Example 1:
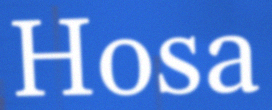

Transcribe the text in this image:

Hosa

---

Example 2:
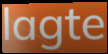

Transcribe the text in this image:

lagte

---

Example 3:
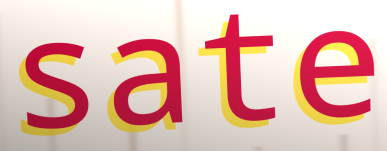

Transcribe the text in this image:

sate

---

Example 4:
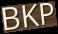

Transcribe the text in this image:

BKP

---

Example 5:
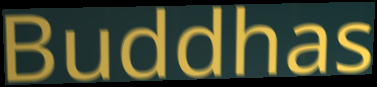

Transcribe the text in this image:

Buddhas